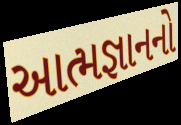
આત્મજ્ઞાનનો